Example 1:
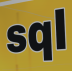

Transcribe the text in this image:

sql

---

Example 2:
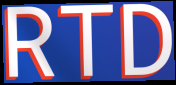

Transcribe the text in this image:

RTD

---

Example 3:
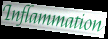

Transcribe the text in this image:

Inflammation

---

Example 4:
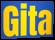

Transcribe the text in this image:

Gita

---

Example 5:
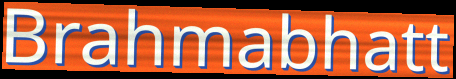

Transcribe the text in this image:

Brahmabhatt